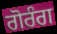
ਗੋਰੰਗ